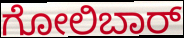
ಗೋಲಿಬಾರ್